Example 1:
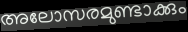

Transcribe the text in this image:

അലോസരമുണ്ടാക്കും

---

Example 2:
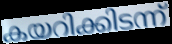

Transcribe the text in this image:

കയറിക്കിടന്ന്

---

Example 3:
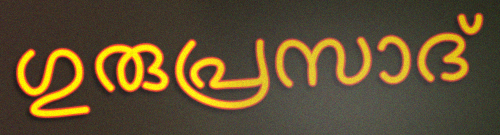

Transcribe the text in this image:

ഗുരുപ്രസാദ്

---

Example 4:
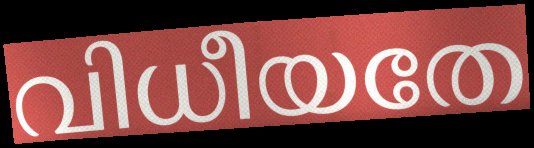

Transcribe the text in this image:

വിധീയതേ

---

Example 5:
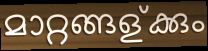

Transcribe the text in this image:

മാറ്റങ്ങള്ക്കും